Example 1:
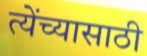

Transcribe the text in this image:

त्येंच्यासाठी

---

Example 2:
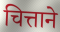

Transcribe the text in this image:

चित्ताने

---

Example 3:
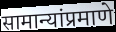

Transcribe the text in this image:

सामान्यांप्रमाणे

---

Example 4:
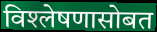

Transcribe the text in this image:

विश्लेषणासोबत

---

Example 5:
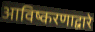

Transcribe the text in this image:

आविष्करणाद्वारे